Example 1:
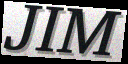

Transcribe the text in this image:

JIM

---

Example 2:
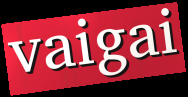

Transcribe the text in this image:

vaigai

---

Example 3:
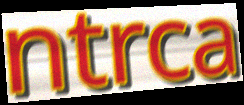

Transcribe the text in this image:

ntrca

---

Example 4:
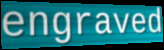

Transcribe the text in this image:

engraved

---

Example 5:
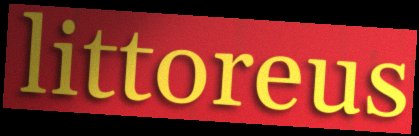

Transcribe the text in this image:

littoreus